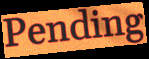
Pending